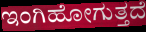
ಇಂಗಿಹೋಗುತ್ತದೆ